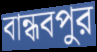
বান্ধবপুর